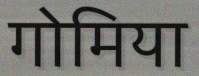
गोमिया